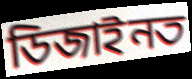
ডিজাইনত